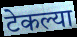
टेकल्या